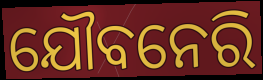
ଯୌବନେରି